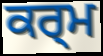
ਕਰ੍ਮ